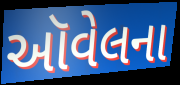
ઑવેલના